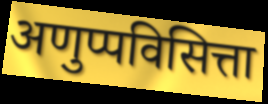
अणुप्पविसित्ता